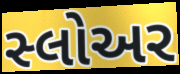
સ્લોઅર